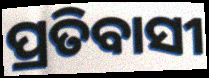
ପ୍ରତିବାସୀ